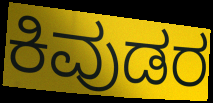
ಕಿವುಡರ